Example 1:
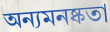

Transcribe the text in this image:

অন্যমনষ্কতা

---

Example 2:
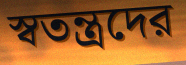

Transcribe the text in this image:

স্বতন্ত্রদের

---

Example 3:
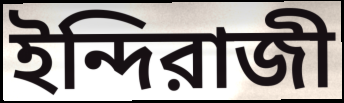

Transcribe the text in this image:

ইন্দিরাজী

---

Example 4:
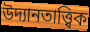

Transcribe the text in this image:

উদ্যানতাত্ত্বিক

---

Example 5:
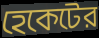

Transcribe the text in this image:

হেকেটের